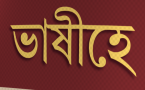
ভাষীহে